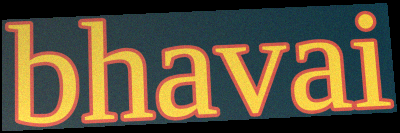
bhavai